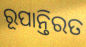
ରୂପାନ୍ତିରତ